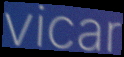
vicar